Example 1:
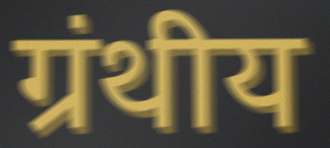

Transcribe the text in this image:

ग्रंथीय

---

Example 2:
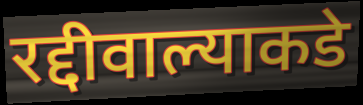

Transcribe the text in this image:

रद्दीवाल्याकडे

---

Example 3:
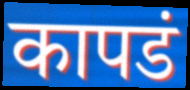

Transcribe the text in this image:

कापडं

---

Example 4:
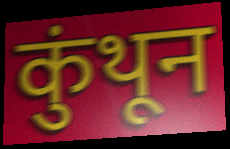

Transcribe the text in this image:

कुंथून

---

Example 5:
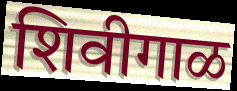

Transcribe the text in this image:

शिवीगाळ